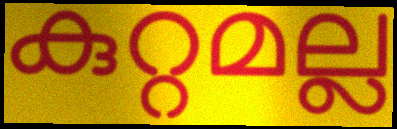
കുറ്റമല്ല